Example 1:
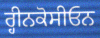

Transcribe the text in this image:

ਰ੍ਹੀਨਕੋਸੀਓਨ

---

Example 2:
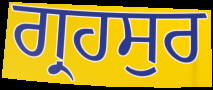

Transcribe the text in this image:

ਗ੍ਰਹਸੁਰ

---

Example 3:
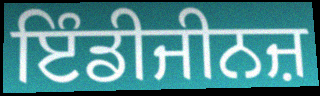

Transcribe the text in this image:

ਇੰਡੀਜੀਨਜ਼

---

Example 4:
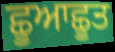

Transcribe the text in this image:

ਛੂਆਛੂਤ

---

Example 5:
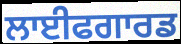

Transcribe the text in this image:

ਲਾਈਫਗਾਰਡ